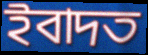
ইবাদত